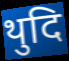
थुदि